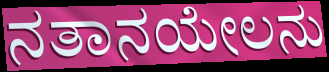
ನತಾನಯೇಲನು